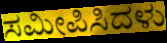
ಸಮೀಪಿಸಿದಳು